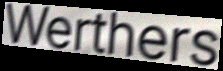
Werthers